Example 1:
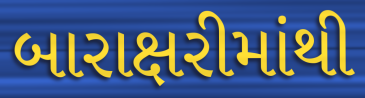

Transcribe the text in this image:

બારાક્ષરીમાંથી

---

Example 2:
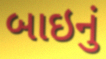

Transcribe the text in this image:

બાઇનું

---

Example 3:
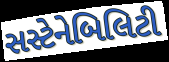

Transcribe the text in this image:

સસ્ટેનેબિલિટી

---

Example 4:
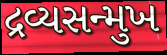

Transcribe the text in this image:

દ્રવ્યસન્મુખ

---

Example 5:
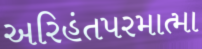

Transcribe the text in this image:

અરિહંતપરમાત્મા